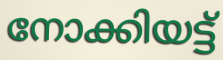
നോക്കിയട്ട്